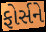
ફોર્સને